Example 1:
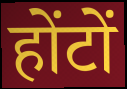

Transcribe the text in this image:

होंटों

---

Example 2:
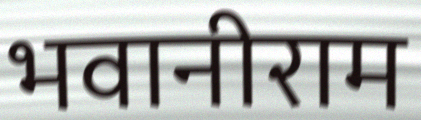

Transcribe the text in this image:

भवानीराम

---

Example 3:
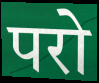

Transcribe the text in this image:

परो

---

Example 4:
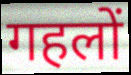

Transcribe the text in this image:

गहलों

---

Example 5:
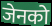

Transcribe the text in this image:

जेनको